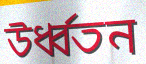
উর্ধ্বতন